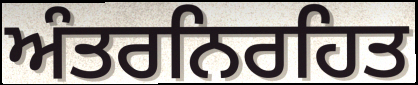
ਅੰਤਰਨਿਰਹਿਤ